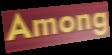
Among